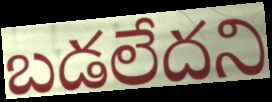
బడలేదని